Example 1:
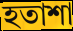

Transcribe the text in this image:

হতাশা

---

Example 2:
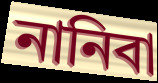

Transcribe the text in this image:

নানিবা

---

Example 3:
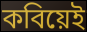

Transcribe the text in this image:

কবিয়েই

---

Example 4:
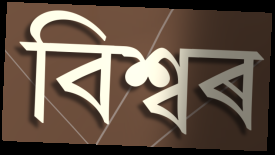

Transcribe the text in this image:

বিশ্বৰ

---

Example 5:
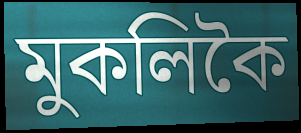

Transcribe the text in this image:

মুকলিকৈ